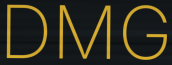
DMG